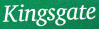
Kingsgate